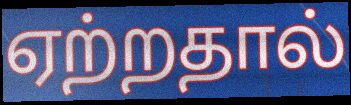
ஏற்றதால்